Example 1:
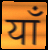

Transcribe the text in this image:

याँ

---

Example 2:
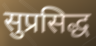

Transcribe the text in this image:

सुप्रसिद्ध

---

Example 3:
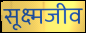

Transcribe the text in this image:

सूक्ष्मजीव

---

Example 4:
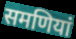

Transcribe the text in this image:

समणियां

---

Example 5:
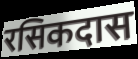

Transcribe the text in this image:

रसिकदास